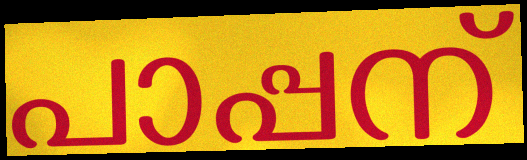
പാപ്പന്